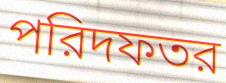
পরিদফতর